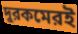
দুরকমেরই